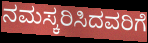
ನಮಸ್ಕರಿಸಿದವರಿಗೆ